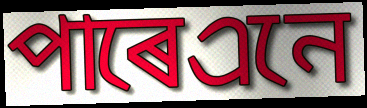
পাৰেএনে